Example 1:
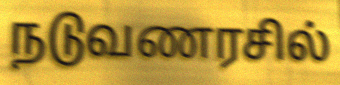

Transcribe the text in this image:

நடுவணரசில்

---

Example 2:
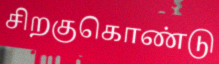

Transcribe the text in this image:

சிறகுகொண்டு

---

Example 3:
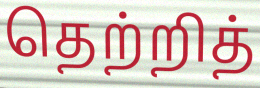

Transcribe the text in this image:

தெற்றித்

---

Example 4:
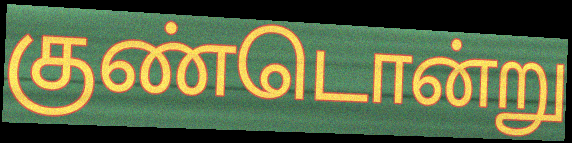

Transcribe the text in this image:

குண்டொன்று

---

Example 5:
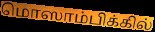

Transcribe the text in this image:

மொஸாம்பிக்கில்